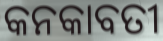
କନକାବତୀ